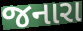
જનારા